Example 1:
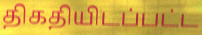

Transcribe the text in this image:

திகதியிடப்பட்ட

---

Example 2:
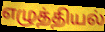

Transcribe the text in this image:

எழுத்தியல்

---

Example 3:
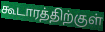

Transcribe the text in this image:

கூடாரத்திற்குள்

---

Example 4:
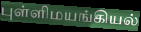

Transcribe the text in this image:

புள்ளிமயங்கியல்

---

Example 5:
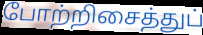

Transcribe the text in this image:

போற்றிசைத்துப்